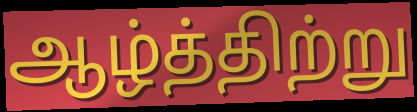
ஆழ்த்திற்று